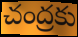
చంద్రకు